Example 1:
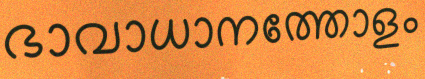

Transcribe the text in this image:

ഭാവാധാനത്തോളം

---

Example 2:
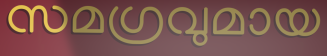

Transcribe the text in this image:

സമഗ്രവുമായ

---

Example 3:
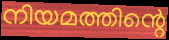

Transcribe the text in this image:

നിയമത്തിന്റെ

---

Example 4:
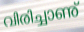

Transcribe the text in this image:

വിരിച്ചാണു്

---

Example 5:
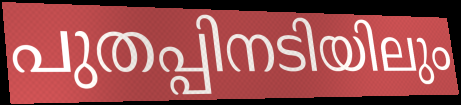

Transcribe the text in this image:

പുതപ്പിനടിയിലും